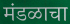
मंडळाचा